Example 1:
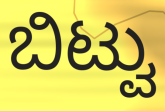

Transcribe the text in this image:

ಬಿಟ್ವು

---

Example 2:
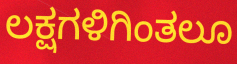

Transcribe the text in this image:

ಲಕ್ಷಗಳಿಗಿಂತಲೂ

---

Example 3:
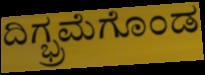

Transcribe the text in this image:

ದಿಗ್ಭ್ರಮೆಗೊಂಡ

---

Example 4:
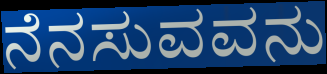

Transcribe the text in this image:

ನೆನಸುವವನು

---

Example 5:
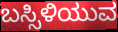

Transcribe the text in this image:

ಬಸ್ಸಿಳಿಯುವ